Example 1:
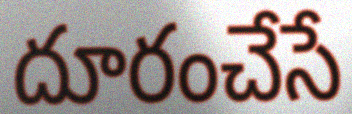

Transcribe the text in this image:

దూరంచేసే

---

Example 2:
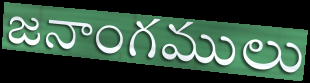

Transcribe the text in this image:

జనాంగములు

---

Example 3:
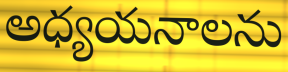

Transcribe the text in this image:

అధ్యయనాలను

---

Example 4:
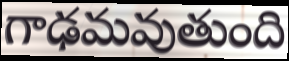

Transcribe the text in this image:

గాఢమవుతుంది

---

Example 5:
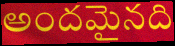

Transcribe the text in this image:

అందమైనది